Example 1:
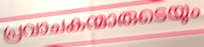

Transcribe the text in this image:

പ്രവാചകന്മാരുടെയും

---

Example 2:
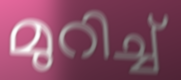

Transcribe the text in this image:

മുറിച്ച്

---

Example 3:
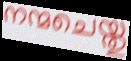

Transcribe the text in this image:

നന്മചെയ്തു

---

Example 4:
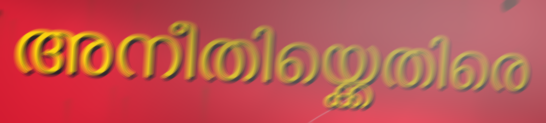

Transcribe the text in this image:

അനീതിയ്ക്കെതിരെ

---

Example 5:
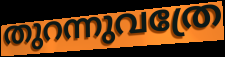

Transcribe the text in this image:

തുറന്നുവത്രേ